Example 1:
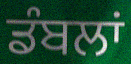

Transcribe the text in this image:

ਡੰਬਲਾਂ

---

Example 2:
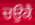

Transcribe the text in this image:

ਚਉਕੈ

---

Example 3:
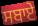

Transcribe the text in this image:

ਸਬਾਏ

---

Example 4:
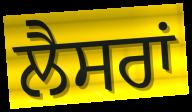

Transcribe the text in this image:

ਲੈਸਰਾਂ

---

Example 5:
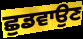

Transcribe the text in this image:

ਛੁਡਵਾਉਣ